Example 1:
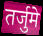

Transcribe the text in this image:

तर्जुमे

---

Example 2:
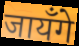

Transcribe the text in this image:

जायँगे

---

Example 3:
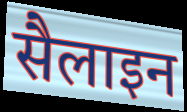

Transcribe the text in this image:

सैलाइन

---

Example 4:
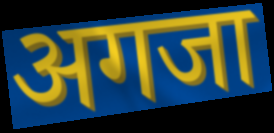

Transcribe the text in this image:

अगजा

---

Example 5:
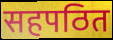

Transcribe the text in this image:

सहपठित